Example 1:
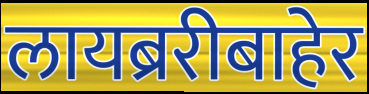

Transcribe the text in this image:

लायब्ररीबाहेर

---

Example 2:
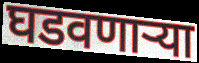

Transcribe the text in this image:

घडवणार्‍या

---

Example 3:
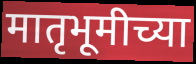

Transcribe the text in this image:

मातृभूमीच्या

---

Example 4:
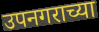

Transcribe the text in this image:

उपनगराच्या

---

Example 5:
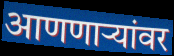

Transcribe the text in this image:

आणणाऱ्यांवर